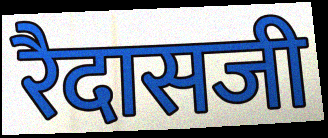
रैदासजी